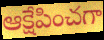
ఆక్షేపించగా